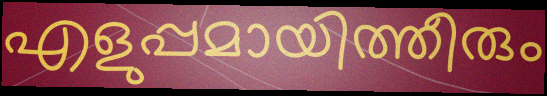
എളുപ്പമായിത്തീരും